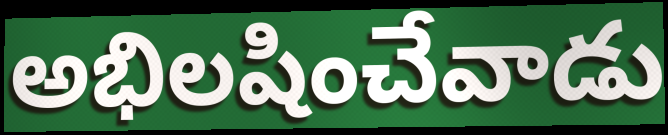
అభిలషించేవాడు